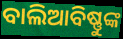
ବାଲିଆବିଷ୍ଣୁଙ୍କ